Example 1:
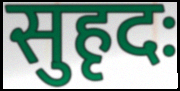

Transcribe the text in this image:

सुहृदः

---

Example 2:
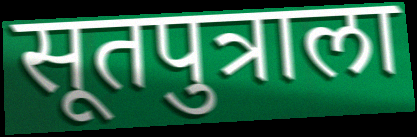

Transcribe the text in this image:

सूतपुत्राला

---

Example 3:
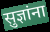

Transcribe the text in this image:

सुज्ञांना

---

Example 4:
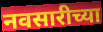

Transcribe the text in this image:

नवसारीच्या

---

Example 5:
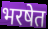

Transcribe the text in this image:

भरषेत